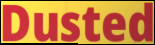
Dusted